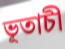
ভূতাচী